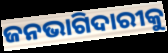
ଜନଭାଗିଦାରୀକୁ